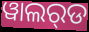
ୱାଲର୍‌ଡ